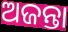
ଅଜନ୍ତା